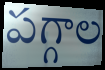
పగ్గాల